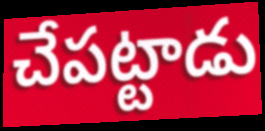
చేపట్టాడు